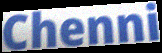
Chenni